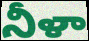
నీళా